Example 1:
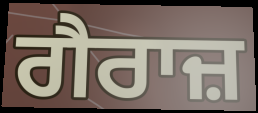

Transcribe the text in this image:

ਗੈਰਾਜ਼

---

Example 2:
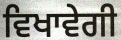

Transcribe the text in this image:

ਵਿਖਾਵੇਗੀ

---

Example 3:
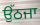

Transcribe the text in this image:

ਉੱਠਜਾ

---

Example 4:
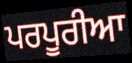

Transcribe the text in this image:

ਪਰਪੂਰੀਆ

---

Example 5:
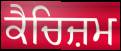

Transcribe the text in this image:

ਕੈਚਿਜ਼ਮ